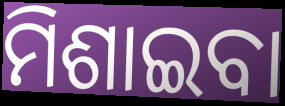
ମିଶାଇବା